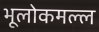
भूलोकमल्ल